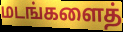
மடங்களைத்